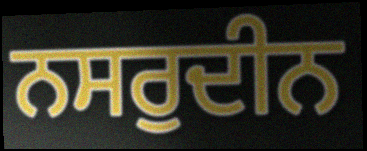
ਨਸਰੁਦੀਨ